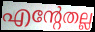
എന്റേതല്ല